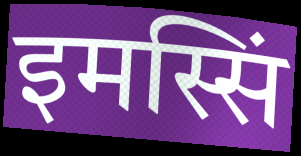
इमस्सिं